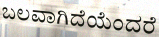
ಬಲವಾಗಿದೆಯೆಂದರೆ